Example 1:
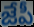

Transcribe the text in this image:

జేపీ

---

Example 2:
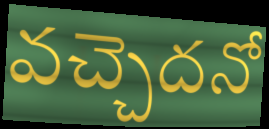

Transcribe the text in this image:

వచ్చెదనో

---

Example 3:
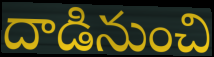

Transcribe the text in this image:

దాడినుంచి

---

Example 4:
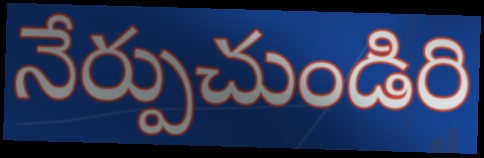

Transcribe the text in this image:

నేర్పుచుండిరి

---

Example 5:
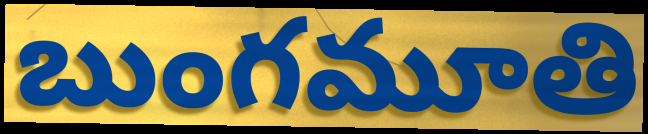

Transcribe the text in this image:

బుంగమూతి